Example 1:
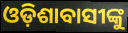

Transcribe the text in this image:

ଓଡ଼ିଶାବାସୀଙ୍କୁ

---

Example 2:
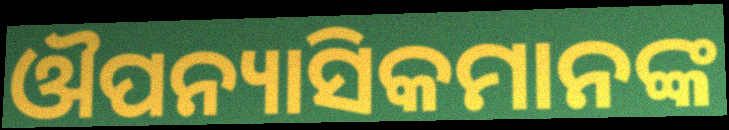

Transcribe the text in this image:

ଔପନ୍ୟାସିକମାନଙ୍କ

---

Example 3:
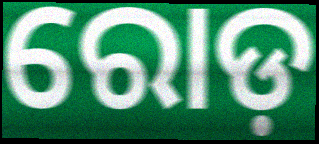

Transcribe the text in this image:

ରୋଡ଼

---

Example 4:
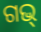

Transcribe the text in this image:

ଗଭ୍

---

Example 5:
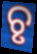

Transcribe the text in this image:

ଚୃ